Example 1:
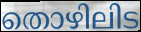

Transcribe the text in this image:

തൊഴിലിട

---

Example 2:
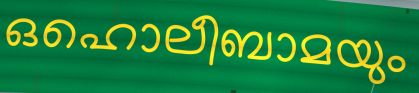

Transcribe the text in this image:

ഒഹൊലീബാമയും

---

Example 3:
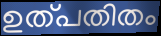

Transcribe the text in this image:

ഉത്പതിതം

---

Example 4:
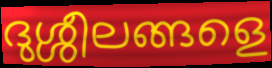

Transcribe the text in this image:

ദുശ്ശീലങ്ങളെ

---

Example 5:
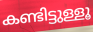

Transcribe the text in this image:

കണ്ടിട്ടുള്ളൂ